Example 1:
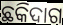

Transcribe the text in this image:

ଛକିଦାଗ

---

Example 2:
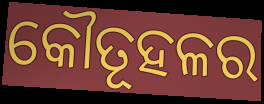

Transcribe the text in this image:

କୌତୂହଳର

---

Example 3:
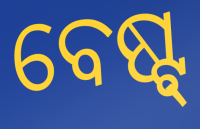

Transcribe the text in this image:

ବେଷ୍ଟ୍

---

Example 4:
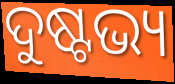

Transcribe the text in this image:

ଦୁଷ୍ଟଭ୍ୟ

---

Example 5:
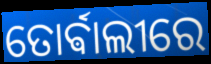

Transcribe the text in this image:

ତୋର୍ଵାଲୀରେ